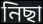
নিছা